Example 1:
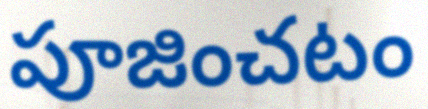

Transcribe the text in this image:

పూజించటం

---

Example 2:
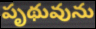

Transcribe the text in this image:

పృథువును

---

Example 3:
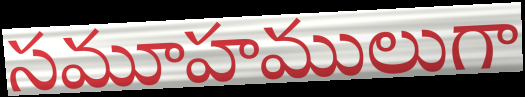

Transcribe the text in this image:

సమూహములుగా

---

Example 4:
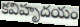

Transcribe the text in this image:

కవిహృదయం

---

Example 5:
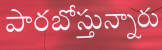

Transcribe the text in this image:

పారబోస్తున్నారు